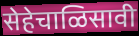
सेहेचाळिसावी